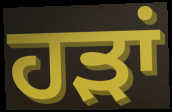
ਹੜਾਂ